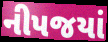
નીપજયાં